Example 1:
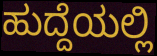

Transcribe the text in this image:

ಹುದ್ದೆಯಲ್ಲಿ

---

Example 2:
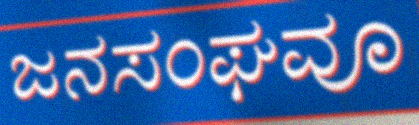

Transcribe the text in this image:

ಜನಸಂಘವೂ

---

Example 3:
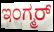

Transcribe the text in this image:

ಇಂಗ್ಮರ್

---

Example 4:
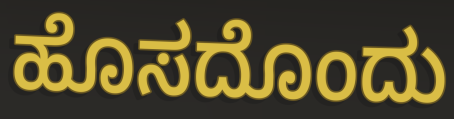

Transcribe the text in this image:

ಹೊಸದೊಂದು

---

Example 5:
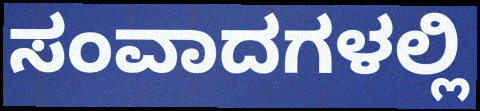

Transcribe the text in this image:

ಸಂವಾದಗಳಲ್ಲಿ